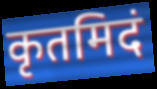
कृतमिदं